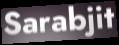
Sarabjit